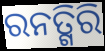
ରନତ୍ଗିରି